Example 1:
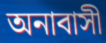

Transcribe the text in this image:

অনাবাসী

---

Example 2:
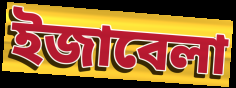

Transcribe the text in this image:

ইজাবেলা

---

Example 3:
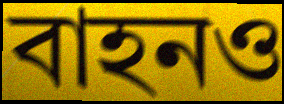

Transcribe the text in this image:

বাহনও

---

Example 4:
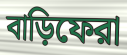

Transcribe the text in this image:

বাড়িফেরা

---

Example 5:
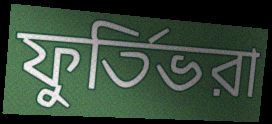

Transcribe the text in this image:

ফুর্তিভরা